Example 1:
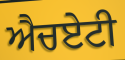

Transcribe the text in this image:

ਐਚਏਟੀ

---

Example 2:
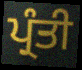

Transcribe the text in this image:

ਪ੍ਰੰਤੀ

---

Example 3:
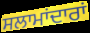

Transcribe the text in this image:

ਸਲਾਮਾਂਦਾਰਾਂ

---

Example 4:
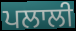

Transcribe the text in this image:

ਪਲਾਲੀ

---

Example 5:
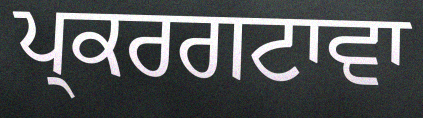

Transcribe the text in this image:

ਪ੍ਕਰਗਟਾਵਾ